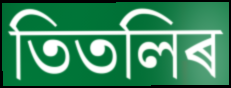
তিতলিৰ